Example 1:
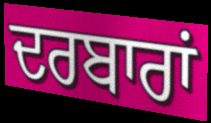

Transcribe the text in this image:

ਦਰਬਾਰਾਂ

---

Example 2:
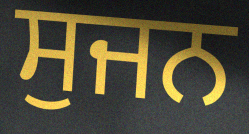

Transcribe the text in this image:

ਸੁਜਨ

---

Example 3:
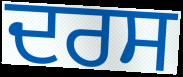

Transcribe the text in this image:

ਦਰਸ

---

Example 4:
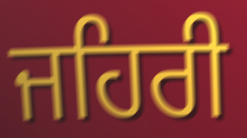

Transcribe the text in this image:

ਜਹਿਰੀ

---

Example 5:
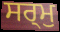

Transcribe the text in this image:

ਸਰ੍ਮੁ